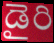
డైరి